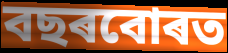
বছৰবোৰত